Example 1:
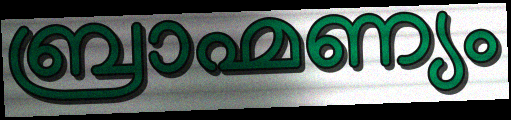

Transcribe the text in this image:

ബ്രാഹ്മണ്യം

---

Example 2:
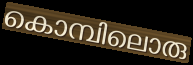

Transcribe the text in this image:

കൊമ്പിലൊരു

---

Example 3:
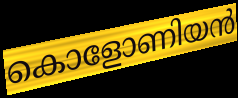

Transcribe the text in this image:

കൊളോണിയൻ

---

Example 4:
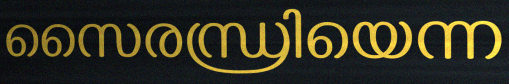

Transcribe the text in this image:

സൈരന്ധ്രിയെന്ന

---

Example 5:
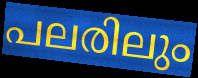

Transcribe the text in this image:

പലരിലും